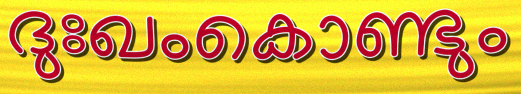
ദുഃഖംകൊണ്ടും